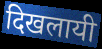
दिखलायी